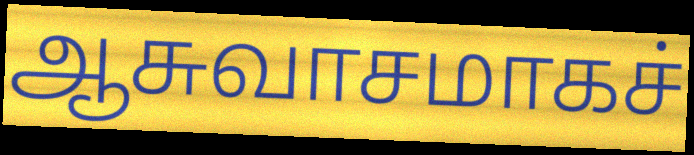
ஆசுவாசமாகச்